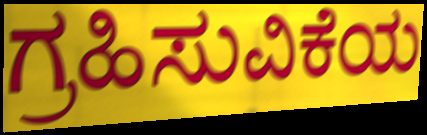
ಗ್ರಹಿಸುವಿಕೆಯ